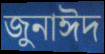
জুনাঈদ